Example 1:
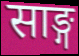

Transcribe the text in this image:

साङ्ग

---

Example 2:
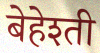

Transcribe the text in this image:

बेहेश्ती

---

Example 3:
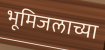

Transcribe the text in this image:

भूमिजलाच्या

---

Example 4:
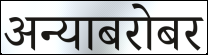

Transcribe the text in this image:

अन्याबरोबर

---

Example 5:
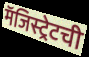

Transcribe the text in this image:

मॅजिस्ट्रेटची